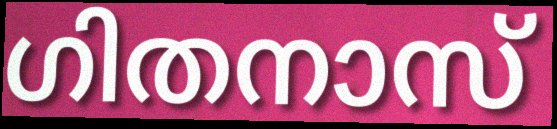
ഗിതനാസ്